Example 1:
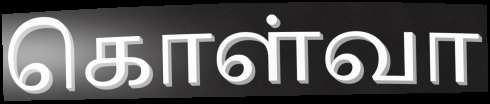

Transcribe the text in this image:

கொள்வா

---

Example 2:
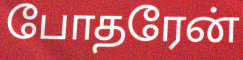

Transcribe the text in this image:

போதரேன்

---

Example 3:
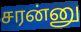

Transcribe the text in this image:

சரன்னு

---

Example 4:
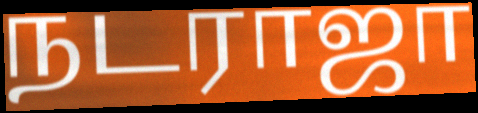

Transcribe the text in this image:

நடராஜா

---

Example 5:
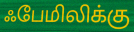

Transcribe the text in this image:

ஃபேமிலிக்கு